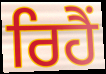
ਰਿਹੈੰ